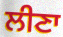
ਲੀਣਾ